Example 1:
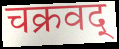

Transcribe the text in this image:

चक्रवद्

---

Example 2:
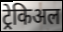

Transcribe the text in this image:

ट्रेकिअल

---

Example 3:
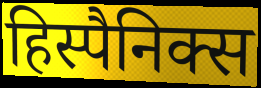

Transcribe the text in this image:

हिस्पैनिक्स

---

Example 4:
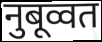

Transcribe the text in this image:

नुबूव्वत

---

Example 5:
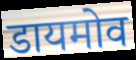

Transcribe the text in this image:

डायमोव